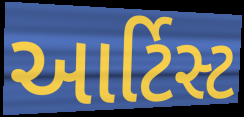
આર્ટિસ્ટ